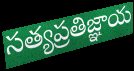
సత్యప్రతిజ్ఞాయ